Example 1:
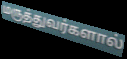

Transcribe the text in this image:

மருத்துவர்களால்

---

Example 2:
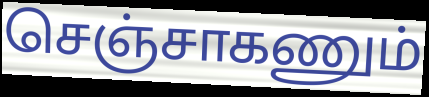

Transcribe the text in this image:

செஞ்சாகணும்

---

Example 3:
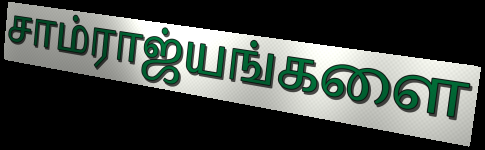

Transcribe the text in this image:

சாம்ராஜ்யங்களை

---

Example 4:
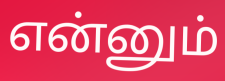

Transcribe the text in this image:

என்னும்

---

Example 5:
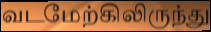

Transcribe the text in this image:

வடமேற்கிலிருந்து